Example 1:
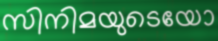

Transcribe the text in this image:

സിനിമയുടെയോ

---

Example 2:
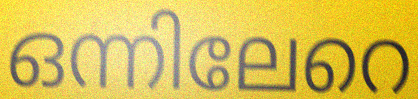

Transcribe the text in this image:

ഒന്നിലേറെ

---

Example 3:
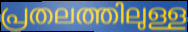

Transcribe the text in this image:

പ്രതലത്തിലുള്ള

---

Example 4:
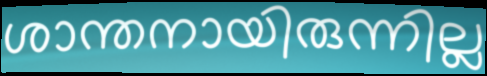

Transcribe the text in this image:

ശാന്തനായിരുന്നില്ല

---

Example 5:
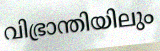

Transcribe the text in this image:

വിഭ്രാന്തിയിലും